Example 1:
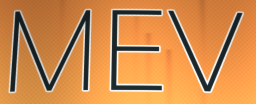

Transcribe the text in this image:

MEV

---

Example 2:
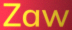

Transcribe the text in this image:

Zaw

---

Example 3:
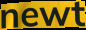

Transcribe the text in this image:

newt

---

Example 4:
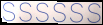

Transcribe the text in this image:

ssssss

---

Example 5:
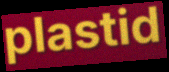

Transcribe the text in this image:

plastid